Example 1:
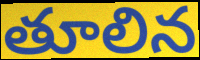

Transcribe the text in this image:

తూలిన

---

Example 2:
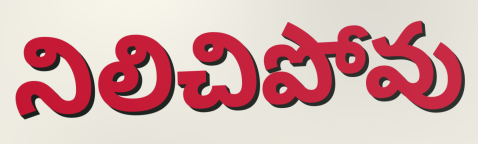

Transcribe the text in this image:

నిలిచిపోవు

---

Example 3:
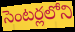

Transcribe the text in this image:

సెంటర్లలోని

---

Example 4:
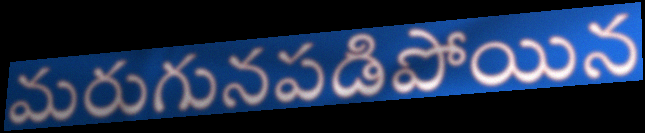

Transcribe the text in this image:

మరుగునపడిపోయిన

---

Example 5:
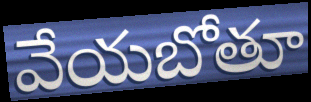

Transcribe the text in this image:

వేయబోతూ